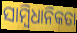
ସାମ୍ବିଧାନିକତା